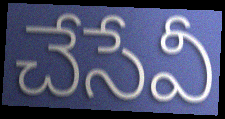
చేసేవీ